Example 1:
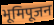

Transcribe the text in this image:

भूमिपूजन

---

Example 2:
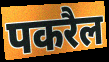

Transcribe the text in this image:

पकरैल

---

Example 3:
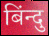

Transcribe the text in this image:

बिंन्दु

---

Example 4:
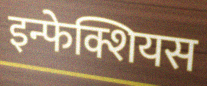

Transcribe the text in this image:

इन्फेक्शियस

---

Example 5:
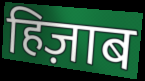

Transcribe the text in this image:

हिज़ाब